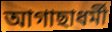
আগাছাধর্মী